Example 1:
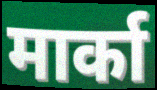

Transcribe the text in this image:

मार्का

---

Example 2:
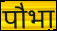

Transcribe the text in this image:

पौभा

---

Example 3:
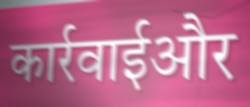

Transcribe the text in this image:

कार्रवाईऔर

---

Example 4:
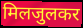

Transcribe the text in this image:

मिलजुलकर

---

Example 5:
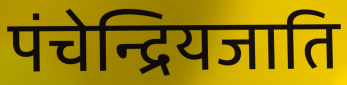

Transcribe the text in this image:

पंचेन्द्रियजाति